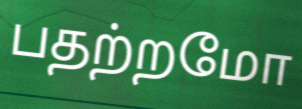
பதற்றமோ